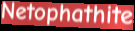
Netophathite